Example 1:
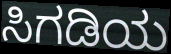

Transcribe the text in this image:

ಸಿಗಡಿಯ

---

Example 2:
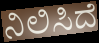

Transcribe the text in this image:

ನಿಲಿಸಿದೆ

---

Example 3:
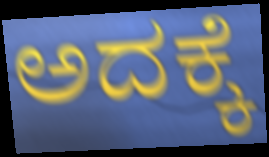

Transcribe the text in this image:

ಅದಕ್ಕೆ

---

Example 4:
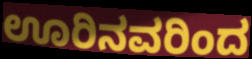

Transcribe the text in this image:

ಊರಿನವರಿಂದ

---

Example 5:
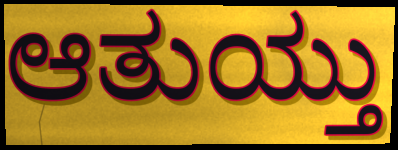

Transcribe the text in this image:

ಆತುಯ್ತು